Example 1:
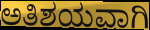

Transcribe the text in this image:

ಅತಿಶಯವಾಗಿ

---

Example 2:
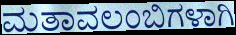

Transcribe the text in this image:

ಮತಾವಲಂಬಿಗಳಾಗಿ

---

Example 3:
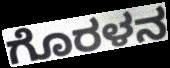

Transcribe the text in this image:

ಗೊರಳನ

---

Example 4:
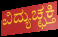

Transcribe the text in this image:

ವಿದ್ಯುಚ್ಛಕ್ತಿ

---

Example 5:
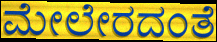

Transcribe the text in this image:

ಮೇಲೇರದಂತೆ